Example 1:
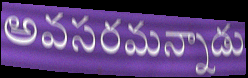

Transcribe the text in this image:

అవసరమన్నాడు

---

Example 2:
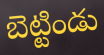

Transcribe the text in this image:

బెట్టిండు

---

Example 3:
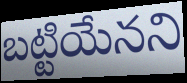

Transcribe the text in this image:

బట్టియేనని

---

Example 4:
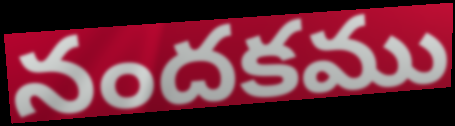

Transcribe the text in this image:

నందకము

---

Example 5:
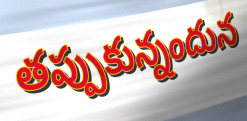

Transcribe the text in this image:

తప్పుకున్నందున